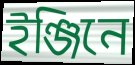
ইঞ্জিনে